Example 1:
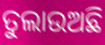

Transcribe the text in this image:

ତୁଲାଉଅଛି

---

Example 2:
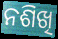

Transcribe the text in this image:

ନଶିଖି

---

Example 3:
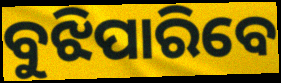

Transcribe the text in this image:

ବୁଝିପାରିବେ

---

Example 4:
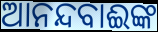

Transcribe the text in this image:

ଆନନ୍ଦବାଈଙ୍କ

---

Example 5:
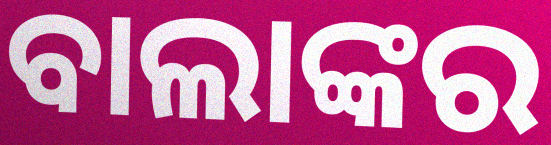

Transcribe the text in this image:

ବାଲାଙ୍କର